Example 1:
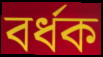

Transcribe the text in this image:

বর্ধক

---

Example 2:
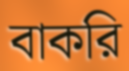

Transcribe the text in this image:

বাকরি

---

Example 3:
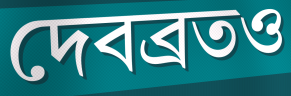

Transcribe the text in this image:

দেবব্রতও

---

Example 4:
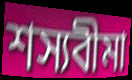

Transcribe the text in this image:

শস্যবীমা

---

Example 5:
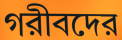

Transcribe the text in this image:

গরীবদের